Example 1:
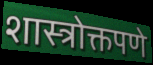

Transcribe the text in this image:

शास्त्रोक्तपणे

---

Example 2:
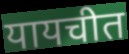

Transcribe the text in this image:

यायचीत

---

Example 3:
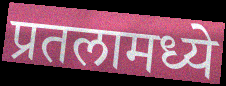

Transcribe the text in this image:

प्रतलामध्ये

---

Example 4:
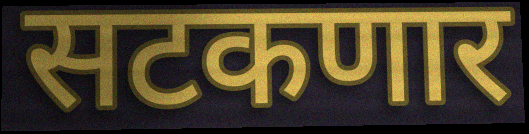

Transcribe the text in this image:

सटकणार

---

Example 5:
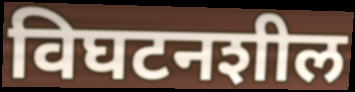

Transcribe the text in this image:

विघटनशील